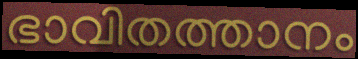
ഭാവിതത്താനം